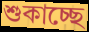
শুকাচ্ছে